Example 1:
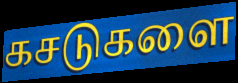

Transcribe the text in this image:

கசடுகளை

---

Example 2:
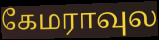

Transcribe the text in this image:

கேமராவுல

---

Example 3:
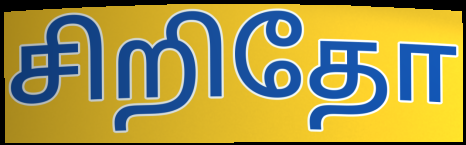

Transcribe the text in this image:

சிறிதோ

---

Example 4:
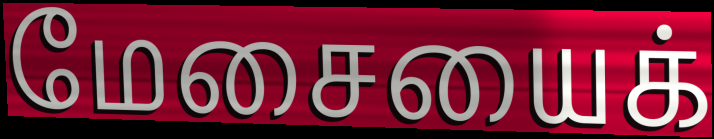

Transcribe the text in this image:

மேசையைக்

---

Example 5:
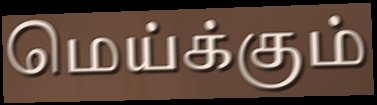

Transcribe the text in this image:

மெய்க்கும்